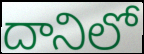
దానిలో